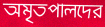
অমৃতপালদের